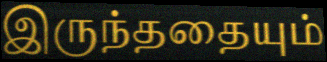
இருந்ததையும்